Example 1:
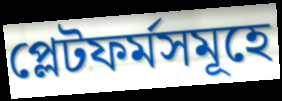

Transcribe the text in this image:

প্লেটফৰ্মসমূহে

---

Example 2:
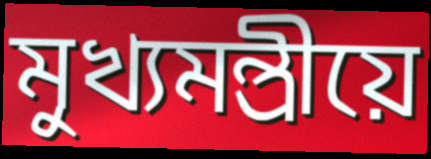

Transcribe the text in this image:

মুখ্যমন্ত্ৰীয়ে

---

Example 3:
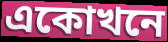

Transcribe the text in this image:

একোখনে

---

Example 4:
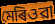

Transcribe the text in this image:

মেৰিওৱা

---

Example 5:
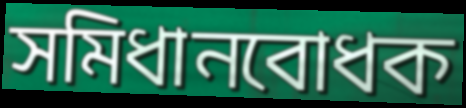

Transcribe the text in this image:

সমিধানবোধক